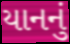
યાનનું